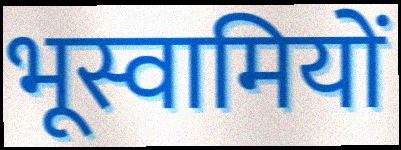
भूस्वामियों